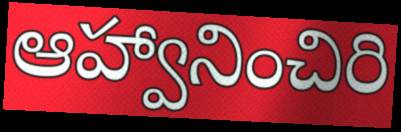
ఆహ్వానించిరి